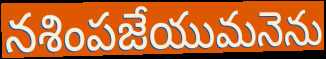
నశింపజేయుమనెను